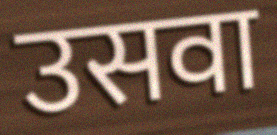
उसवा